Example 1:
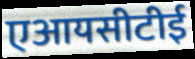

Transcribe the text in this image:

एआयसीटीई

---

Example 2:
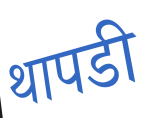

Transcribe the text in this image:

थापडी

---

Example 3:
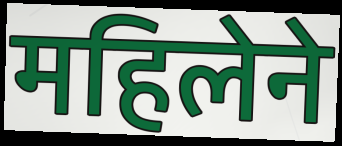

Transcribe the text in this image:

महिलेने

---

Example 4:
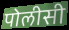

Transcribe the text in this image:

पोलीसी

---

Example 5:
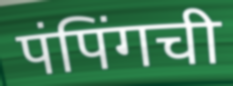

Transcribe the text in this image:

पंपिंगची